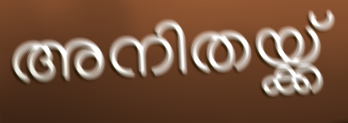
അനിതയ്ക്ക്